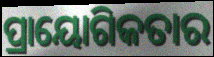
ପ୍ରାୟୋଗିକତାର